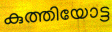
കുത്തിയോട്ട